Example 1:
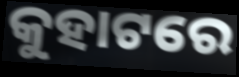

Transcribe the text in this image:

କୁହାଟରେ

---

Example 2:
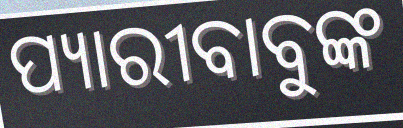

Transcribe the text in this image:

ପ୍ୟାରୀବାବୁଙ୍କ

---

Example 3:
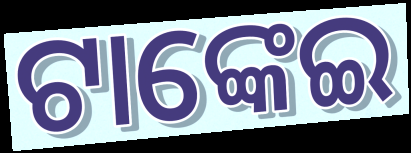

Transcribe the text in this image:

ଟାଙ୍କେଇ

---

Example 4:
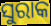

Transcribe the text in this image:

ସୁରାକ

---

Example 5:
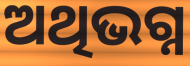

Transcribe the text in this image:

ଅଥିଭଗ୍ନ